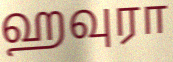
ஹவுரா